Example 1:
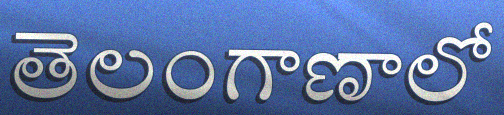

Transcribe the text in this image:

తెలంగాణాలో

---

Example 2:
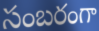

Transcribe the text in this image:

సంబరంగా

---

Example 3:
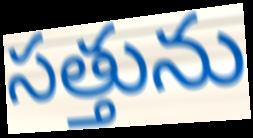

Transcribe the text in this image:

సత్తును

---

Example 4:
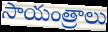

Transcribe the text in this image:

సాయంత్రాలు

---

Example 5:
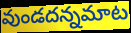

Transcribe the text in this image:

వుండదన్నమాట